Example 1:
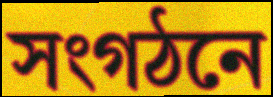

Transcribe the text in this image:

সংগঠনে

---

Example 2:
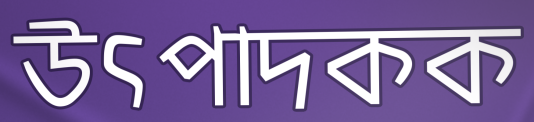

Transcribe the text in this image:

উৎপাদকক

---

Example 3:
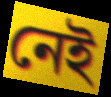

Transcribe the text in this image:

নেই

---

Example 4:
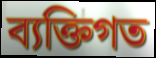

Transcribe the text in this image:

ব্যক্তিগত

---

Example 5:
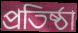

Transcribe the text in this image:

প্ৰতিষ্ঠা